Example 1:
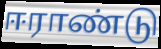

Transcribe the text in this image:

ஈராண்டு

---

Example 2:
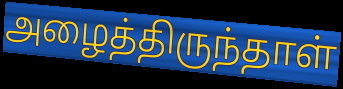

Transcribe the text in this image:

அழைத்திருந்தாள்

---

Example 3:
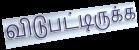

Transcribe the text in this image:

விடுபட்டிருக்க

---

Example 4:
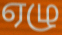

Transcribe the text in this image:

ஏழு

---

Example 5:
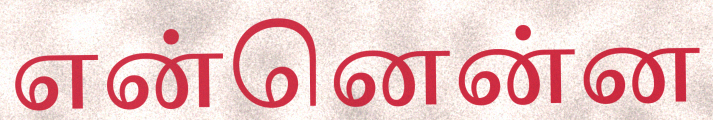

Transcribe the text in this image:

என்னென்ன